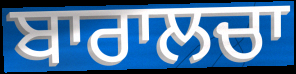
ਬਾਰਾਲਚਾ